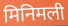
मिनिमली